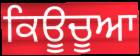
ਕਿਊਚੂਆ